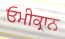
ਓਮੀਕ੍ਰਾਨ